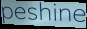
peshine